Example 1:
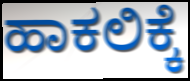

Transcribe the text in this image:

ಹಾಕಲಿಕ್ಕೆ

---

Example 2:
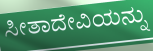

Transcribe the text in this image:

ಸೀತಾದೇವಿಯನ್ನು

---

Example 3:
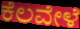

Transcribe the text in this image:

ಕೆಲವೇಳೆ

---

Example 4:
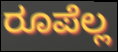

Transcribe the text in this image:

ರೂಪೆಲ್ಲ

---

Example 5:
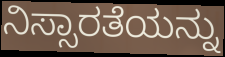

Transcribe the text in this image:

ನಿಸ್ಸಾರತೆಯನ್ನು